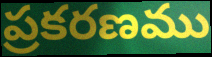
ప్రకరణము